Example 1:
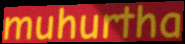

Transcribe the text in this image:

muhurtha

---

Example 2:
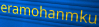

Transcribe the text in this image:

eramohanmku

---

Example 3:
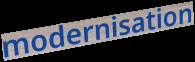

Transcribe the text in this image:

modernisation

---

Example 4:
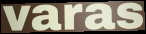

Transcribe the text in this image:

varas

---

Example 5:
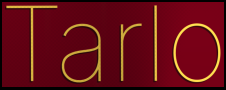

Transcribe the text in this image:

Tarlo